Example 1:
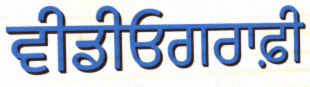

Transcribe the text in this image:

ਵੀਡੀਓਗਰਾਫ਼ੀ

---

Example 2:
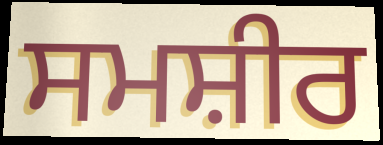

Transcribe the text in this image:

ਸਮਸ਼ੀਰ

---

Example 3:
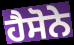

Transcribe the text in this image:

ਹੈਸੋਨੇ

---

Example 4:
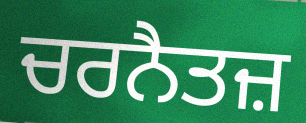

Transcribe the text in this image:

ਚਰਨੈਤਜ਼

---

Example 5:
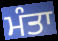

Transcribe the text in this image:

ਮੰਤਾ